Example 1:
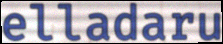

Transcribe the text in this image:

elladaru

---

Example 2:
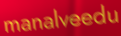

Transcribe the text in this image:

manalveedu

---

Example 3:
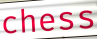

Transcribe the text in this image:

chess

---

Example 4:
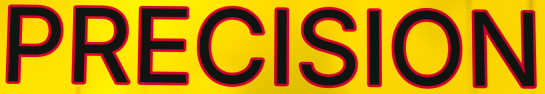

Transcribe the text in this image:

PRECISION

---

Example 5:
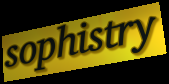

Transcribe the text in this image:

sophistry